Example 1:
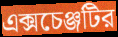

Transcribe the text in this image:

এক্সচেঞ্জটির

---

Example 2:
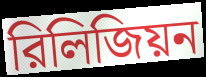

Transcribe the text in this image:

রিলিজিয়ন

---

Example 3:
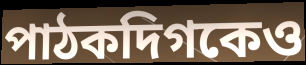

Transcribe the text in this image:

পাঠকদিগকেও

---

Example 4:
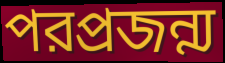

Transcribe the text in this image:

পরপ্রজন্ম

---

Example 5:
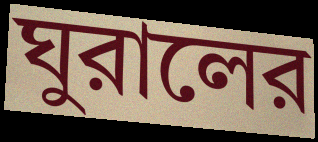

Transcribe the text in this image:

ঘুরালের